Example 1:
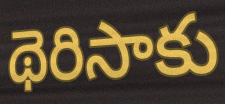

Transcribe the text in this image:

థెరిసాకు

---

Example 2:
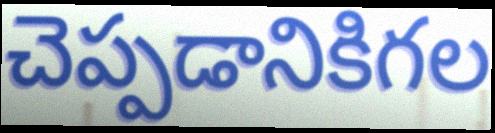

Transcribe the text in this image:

చెప్పడానికిగల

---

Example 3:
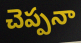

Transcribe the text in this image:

చెప్పనా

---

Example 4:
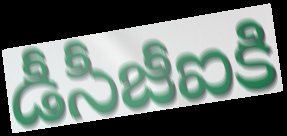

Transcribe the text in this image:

డీసీజీఐకి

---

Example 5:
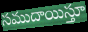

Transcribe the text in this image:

సముదాయిస్తూ